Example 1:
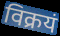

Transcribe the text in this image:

विक्रयं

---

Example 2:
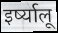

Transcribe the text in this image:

इर्ष्यालू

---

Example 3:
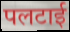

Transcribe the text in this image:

पलटाई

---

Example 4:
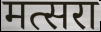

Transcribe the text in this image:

मत्सरा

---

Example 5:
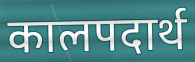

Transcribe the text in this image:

कालपदार्थ